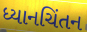
ધ્યાનચિંતન